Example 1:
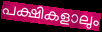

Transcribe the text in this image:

പക്ഷികളാലും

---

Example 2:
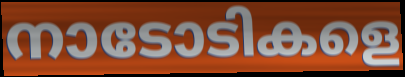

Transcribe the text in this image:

നാടോടികളെ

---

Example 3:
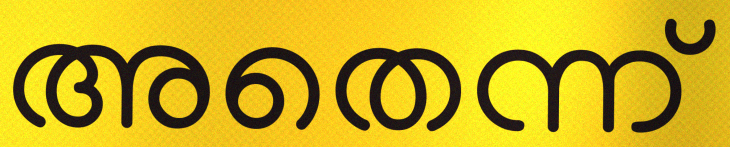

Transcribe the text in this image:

അതെന്ന്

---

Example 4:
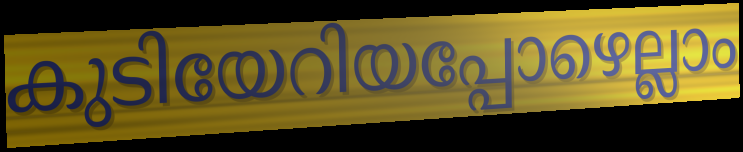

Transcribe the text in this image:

കുടിയേറിയപ്പോഴെല്ലാം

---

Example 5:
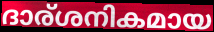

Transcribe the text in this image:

ദാര്ശനികമായ